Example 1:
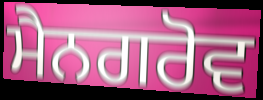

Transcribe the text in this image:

ਮੈਨਗਰੋਵ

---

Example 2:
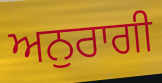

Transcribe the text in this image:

ਅਨੁਰਾਗੀ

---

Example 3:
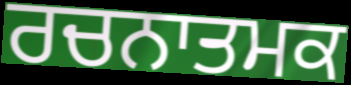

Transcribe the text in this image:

ਰਚਨਾਤਮਕ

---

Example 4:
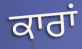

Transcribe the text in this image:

ਕਾਰਾਂ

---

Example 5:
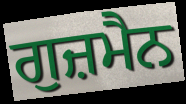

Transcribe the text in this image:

ਗੁਜ਼ਮੈਨ